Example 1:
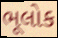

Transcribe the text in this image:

ભૂલોક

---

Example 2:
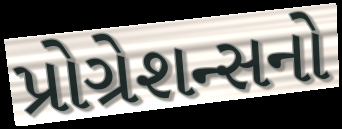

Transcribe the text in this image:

પ્રોગ્રેશન્સનો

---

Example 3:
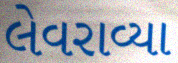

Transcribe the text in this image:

લેવરાવ્યા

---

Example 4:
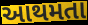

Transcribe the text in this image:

આથમતા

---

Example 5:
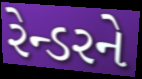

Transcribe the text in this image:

રેન્ડરને